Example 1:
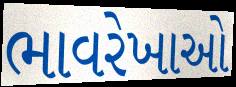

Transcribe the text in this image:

ભાવરેખાઓ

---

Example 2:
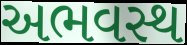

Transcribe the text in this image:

અભવસ્થ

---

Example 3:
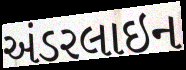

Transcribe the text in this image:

અંડરલાઇન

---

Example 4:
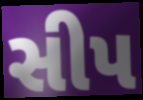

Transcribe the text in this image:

સીપ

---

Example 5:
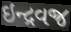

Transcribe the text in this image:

ઇન્દ્રવજ્ર